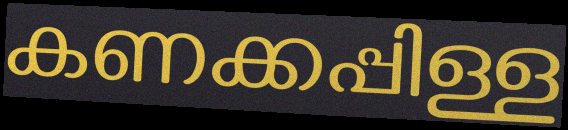
കണക്കപ്പിള്ള